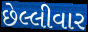
છેલ્લીવાર